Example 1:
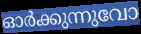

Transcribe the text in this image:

ഓർക്കുന്നുവോ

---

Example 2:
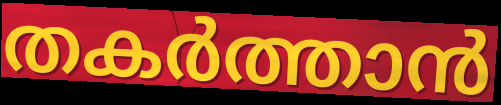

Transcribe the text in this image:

തകർത്താൻ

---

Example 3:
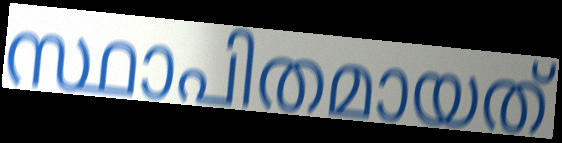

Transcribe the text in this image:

സ്ഥാപിതമായത്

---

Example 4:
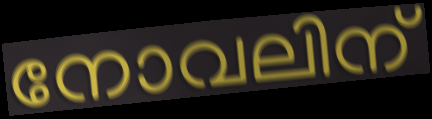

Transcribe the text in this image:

നോവലിന്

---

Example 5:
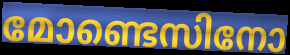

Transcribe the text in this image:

മോണ്ടെസിനോ